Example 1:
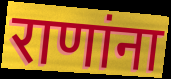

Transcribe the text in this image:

राणांना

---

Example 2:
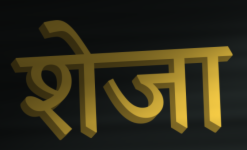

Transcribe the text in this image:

शेजा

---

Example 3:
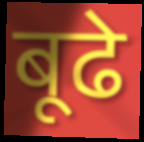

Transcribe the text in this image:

बूढे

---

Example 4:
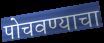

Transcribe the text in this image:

पोचवण्याचा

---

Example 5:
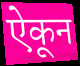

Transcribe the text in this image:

ऐकून